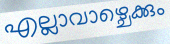
എല്ലാവാഴ്ചെക്കും